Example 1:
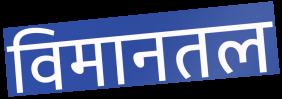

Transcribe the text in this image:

विमानतल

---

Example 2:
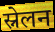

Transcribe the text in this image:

स्नेलन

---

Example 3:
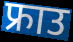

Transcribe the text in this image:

फ्राउ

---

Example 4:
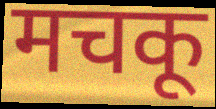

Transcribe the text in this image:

मचकू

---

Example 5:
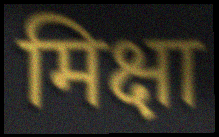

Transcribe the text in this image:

मिक्षा